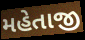
મહેતાજી